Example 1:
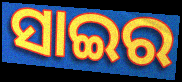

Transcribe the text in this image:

ସାଇର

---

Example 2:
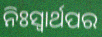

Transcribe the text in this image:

ନିଃସ୍ୱାର୍ଥପର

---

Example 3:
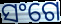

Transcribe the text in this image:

ସଂଗେ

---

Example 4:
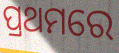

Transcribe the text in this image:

ପ୍ରଥମରେ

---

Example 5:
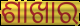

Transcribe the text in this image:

ଶାଖାର